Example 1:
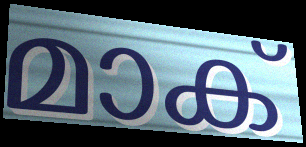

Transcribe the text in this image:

മാക്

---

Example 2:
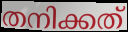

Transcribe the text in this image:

തനിക്കത്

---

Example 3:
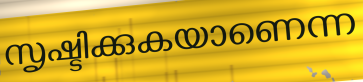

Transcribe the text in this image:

സൃഷ്ടിക്കുകയാണെന്ന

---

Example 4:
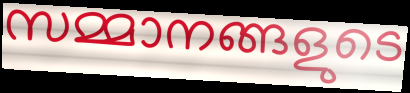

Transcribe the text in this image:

സമ്മാനങ്ങളുടെ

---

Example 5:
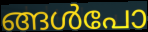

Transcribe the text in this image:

ങ്ങൾപോ